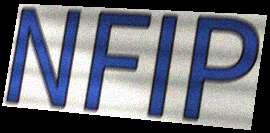
NFIP